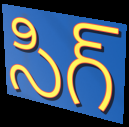
సిగ్